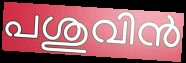
പശുവിൻ